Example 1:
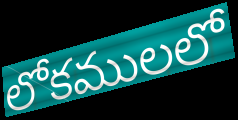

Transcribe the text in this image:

లోకములలో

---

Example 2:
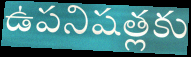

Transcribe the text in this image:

ఉపనిషత్లకు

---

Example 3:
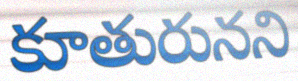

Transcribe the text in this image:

కూతురునని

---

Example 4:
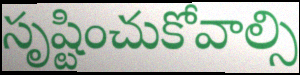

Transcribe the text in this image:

సృష్టించుకోవాల్సి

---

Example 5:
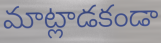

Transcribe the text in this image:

మాట్లాడకండా